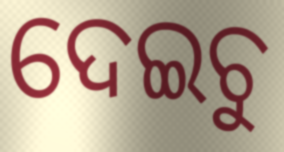
ଦେଇଚୁ